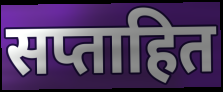
सप्ताहित